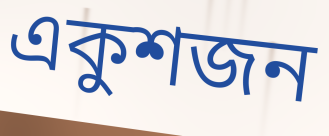
একুশজন